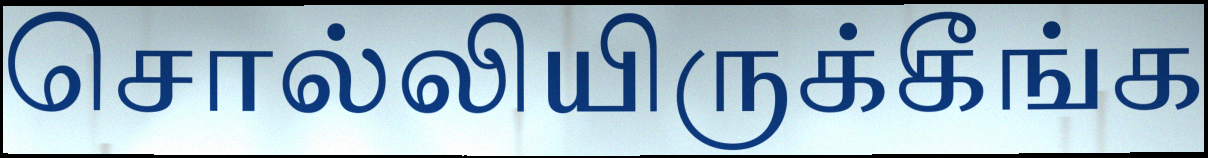
சொல்லியிருக்கீங்க